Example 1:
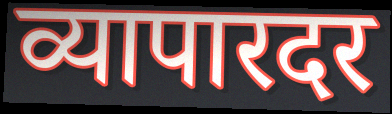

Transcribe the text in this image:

व्यापारदर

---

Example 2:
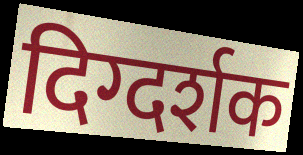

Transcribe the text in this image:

दिग्‍दर्शक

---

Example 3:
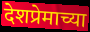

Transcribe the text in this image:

देशप्रेमाच्या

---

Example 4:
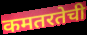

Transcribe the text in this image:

कमतरतेची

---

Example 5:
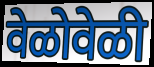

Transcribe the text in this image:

वेळोवेळी